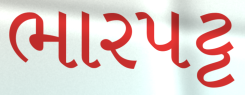
ભારપટ્ટ